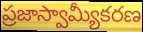
ప్రజాస్వామ్యీకరణ